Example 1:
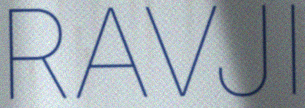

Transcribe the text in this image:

RAVJI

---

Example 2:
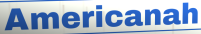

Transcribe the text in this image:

Americanah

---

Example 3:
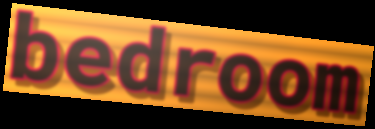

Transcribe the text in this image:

bedroom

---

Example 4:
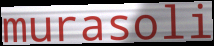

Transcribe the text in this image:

murasoli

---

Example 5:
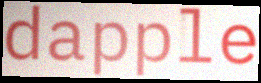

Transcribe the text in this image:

dapple